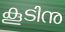
കൂടിനു